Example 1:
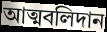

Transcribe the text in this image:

আত্মবলিদান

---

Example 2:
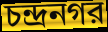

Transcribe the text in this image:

চন্দ্রনগর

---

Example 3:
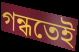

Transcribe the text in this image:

গন্ধতেই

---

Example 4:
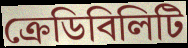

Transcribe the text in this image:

ক্রেডিবিলিটি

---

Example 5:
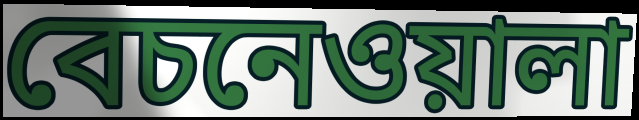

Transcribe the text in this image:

বেচনেওয়ালা